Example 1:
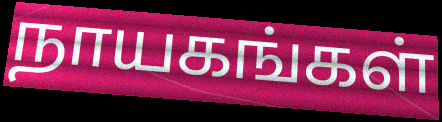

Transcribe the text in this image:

நாயகங்கள்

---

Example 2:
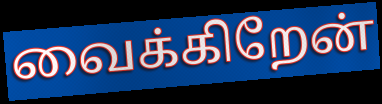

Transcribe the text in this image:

வைக்கிறேன்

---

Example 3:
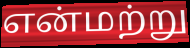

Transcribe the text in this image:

என்மற்று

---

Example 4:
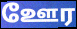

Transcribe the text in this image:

ஊேர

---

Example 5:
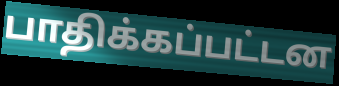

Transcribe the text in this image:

பாதிக்கப்பட்டன